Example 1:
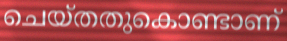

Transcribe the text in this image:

ചെയ്തതുകൊണ്ടാണ്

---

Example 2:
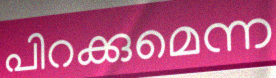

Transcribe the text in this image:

പിറക്കുമെന്ന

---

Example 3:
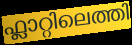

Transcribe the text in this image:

ഫ്ലാറ്റിലെത്തി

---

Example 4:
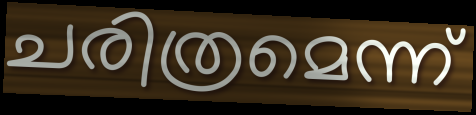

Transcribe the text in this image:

ചരിത്രമെന്ന്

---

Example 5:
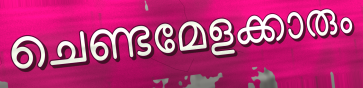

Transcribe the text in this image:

ചെണ്ടമേളക്കാരും